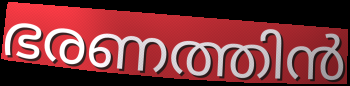
ഭരണത്തിൻ